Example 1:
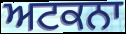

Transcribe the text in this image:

ਅਟਕਨਾ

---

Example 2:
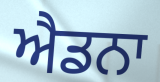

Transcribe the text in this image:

ਐਡਨਾ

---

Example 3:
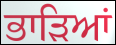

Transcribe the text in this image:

ਭਾੜਿਆਂ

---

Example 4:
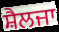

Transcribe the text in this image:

ਸ਼ੈਲਜਾ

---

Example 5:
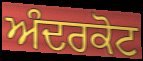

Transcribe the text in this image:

ਅੰਦਰਕੋਟ